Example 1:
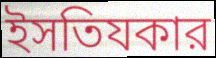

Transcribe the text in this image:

ইসতিযকার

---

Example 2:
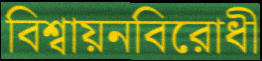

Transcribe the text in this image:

বিশ্বায়নবিরোধী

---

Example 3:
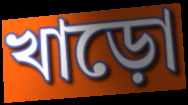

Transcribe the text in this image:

খাড়ো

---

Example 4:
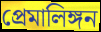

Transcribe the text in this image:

প্রেমালিঙ্গন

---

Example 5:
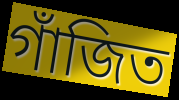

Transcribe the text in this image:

গাঁজিত